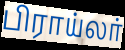
பிராய்லர்